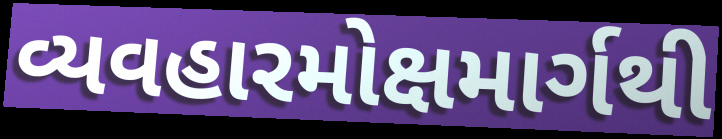
વ્યવહારમોક્ષમાર્ગથી